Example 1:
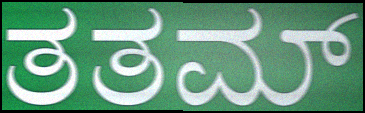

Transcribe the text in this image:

ತತಮ್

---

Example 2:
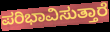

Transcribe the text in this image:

ಪರಿಭಾವಿಸುತ್ತಾರೆ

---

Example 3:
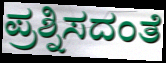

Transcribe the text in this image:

ಪ್ರಶ್ನಿಸದಂತೆ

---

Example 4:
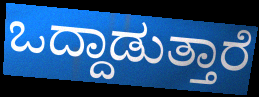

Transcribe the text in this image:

ಒದ್ದಾಡುತ್ತಾರೆ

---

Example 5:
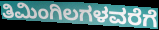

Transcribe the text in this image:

ತಿಮಿಂಗಿಲಗಳವರೆಗೆ